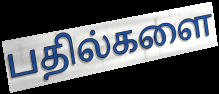
பதில்களை